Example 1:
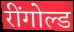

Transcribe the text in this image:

रींगोल्ड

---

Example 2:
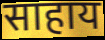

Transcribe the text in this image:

साहाय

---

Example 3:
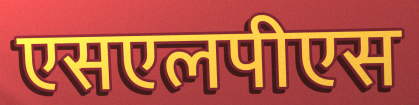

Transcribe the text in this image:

एसएलपीएस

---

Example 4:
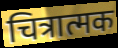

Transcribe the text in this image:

चित्रात्मक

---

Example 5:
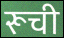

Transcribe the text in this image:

रूची